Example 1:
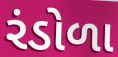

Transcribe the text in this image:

રંડોળા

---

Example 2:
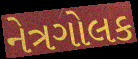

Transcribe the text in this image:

નેત્રગોલક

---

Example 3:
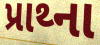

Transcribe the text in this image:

પ્રાથ્ના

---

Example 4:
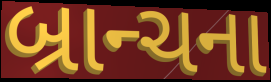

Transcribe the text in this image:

બ્રાન્ચના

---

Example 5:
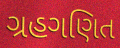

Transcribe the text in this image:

ગ્રહગણિત